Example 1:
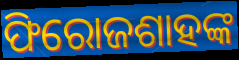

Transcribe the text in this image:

ଫିରୋଜଶାହଙ୍କ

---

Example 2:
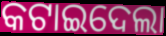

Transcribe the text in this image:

କଟାଇଦେଲା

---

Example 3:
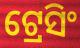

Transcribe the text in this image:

ଟ୍ରେସିଂ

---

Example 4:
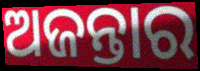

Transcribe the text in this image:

ଅଜନ୍ତାର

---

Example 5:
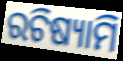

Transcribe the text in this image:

ରଚିଷ୍ୟାମି